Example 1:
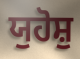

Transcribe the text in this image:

ਯੁਹੋਸ਼ੁ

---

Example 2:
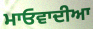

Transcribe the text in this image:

ਮਾਓਵਾਦੀਆ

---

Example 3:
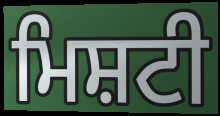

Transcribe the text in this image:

ਮਿਸ਼ਟੀ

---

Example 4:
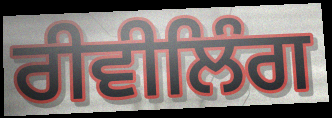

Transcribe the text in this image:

ਰੀਵੀਲਿੰਗ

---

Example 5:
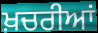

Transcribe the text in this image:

ਖ਼ਚਰੀਆਂ